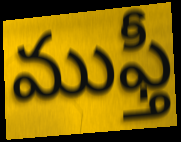
ముఫ్తీ